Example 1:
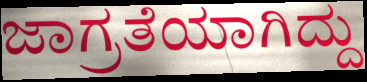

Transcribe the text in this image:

ಜಾಗ್ರತೆಯಾಗಿದ್ದು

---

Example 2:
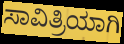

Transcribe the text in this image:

ಸಾವಿತ್ರಿಯಾಗಿ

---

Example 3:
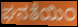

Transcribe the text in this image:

ಘನತೆಯಿಂ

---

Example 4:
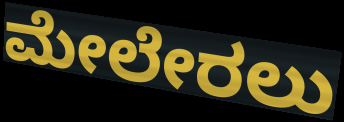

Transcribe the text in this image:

ಮೇಲೇರಲು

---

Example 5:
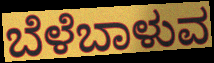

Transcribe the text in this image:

ಬೆಳೆಬಾಳುವ